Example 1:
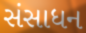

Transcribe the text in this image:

સંસાધન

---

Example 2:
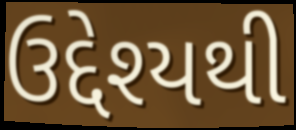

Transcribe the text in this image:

ઉદ્દેશ્યથી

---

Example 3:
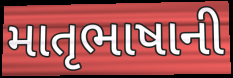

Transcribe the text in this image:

માતૃભાષાની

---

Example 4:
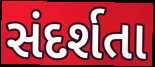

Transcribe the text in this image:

સંદર્શતા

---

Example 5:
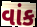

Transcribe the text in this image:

વાંક